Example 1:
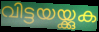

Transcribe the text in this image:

വിട്ടയയ്ക്കുക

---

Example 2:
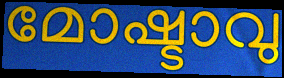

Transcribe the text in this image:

മോഷ്ടാവു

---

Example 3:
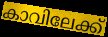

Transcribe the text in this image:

കാവിലേക്ക്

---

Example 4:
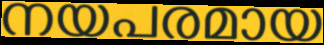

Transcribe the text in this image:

നയപരമായ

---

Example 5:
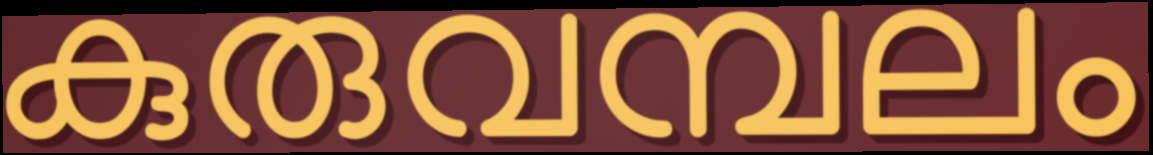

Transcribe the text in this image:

കുരുവമ്പലം